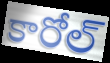
కారోల్